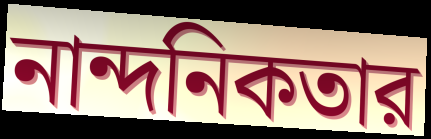
নান্দনিকতার